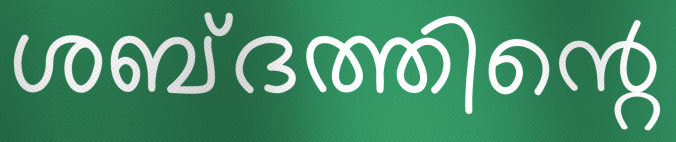
ശബ്ദത്തിന്റെ